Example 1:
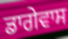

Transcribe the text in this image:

ਡਾਗੇਵਾਸ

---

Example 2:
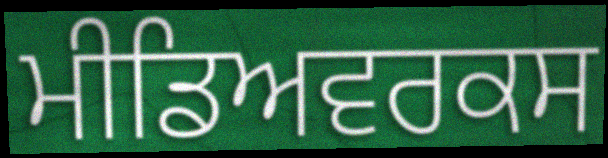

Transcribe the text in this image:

ਮੀਡਿਅਵਰਕਸ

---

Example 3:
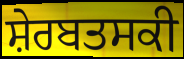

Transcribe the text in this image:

ਸ਼ੇਰਬਤਸਕੀ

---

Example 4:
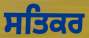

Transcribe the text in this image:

ਸਤਿਕਰ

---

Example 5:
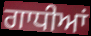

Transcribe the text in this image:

ਗਾਧੀਆਂ